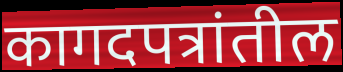
कागदपत्रांतील